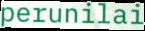
perunilai